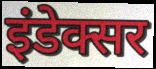
इंडेक्सर